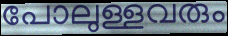
പോലുള്ളവരും